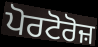
ਪੋਰਟੋਰੋਜ਼